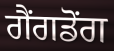
ਗੈਂਗਡੋਂਗ